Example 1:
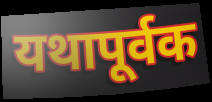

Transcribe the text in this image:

यथापूर्वक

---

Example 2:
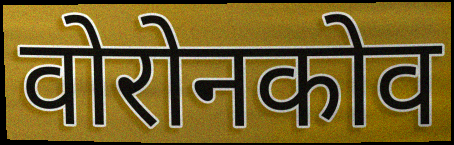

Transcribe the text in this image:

वोरोनकोव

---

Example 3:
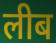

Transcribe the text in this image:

लीब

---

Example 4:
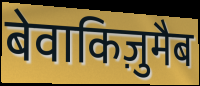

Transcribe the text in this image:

बेवाकिज़ुमैब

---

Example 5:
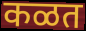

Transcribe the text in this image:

कळत